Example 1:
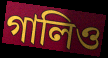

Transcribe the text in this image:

গালিও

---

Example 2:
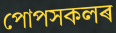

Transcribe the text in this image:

পোপসকলৰ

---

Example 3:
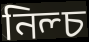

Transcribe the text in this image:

নিল্চ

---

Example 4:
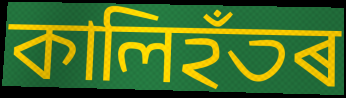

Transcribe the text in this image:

কালিহঁতৰ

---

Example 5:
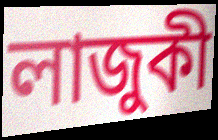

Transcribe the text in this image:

লাজুকী